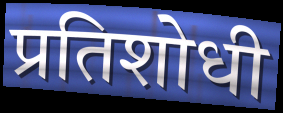
प्रतिशोधी